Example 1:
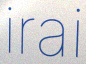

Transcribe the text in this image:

irai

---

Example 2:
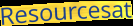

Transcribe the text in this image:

Resourcesat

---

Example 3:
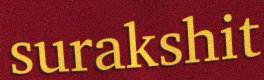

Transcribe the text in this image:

surakshit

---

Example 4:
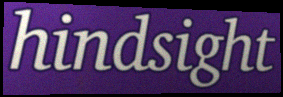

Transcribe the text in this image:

hindsight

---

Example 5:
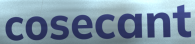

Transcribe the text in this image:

cosecant